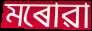
মৰোৱা